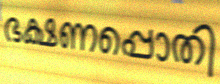
ഭക്ഷണപ്പൊതി